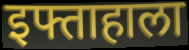
इफ्ताहाला